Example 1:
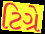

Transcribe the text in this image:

ટિગ્રે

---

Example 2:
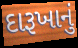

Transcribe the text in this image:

દારૂખાનું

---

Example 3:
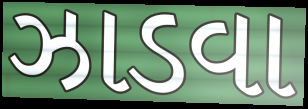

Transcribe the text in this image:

ઝાડવા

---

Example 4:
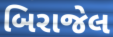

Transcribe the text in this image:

બિરાજેલ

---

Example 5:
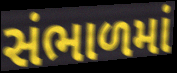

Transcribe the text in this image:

સંભાળમાં